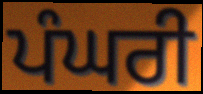
ਪੰਘਰੀ